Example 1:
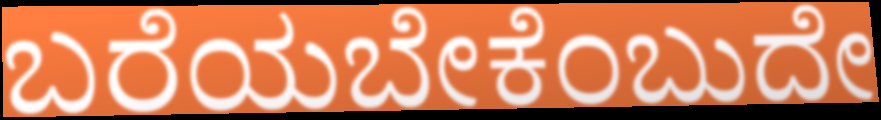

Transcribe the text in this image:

ಬರೆಯಬೇಕೆಂಬುದೇ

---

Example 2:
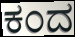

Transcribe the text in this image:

ಕಂದ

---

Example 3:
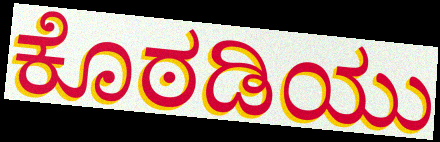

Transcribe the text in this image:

ಕೊಠಡಿಯು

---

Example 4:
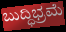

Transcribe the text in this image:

ಬುದ್ಧಿಭ್ರಮೆ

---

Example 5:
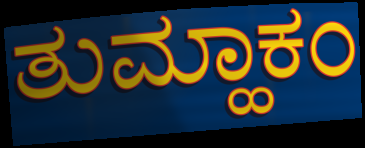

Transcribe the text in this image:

ತುಮ್ಹಾಕಂ